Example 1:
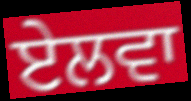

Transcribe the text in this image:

ਏਲਵਾ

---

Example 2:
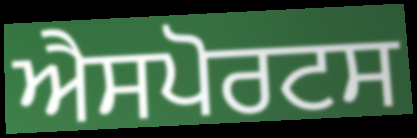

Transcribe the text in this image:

ਐਸਪੋਰਟਸ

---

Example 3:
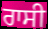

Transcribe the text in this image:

ਰਾਸੀ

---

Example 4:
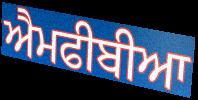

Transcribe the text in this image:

ਐਮਫੀਬੀਆ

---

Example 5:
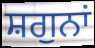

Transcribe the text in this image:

ਸ਼ਗੁਨਾਂ